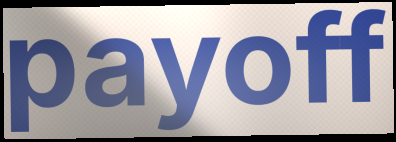
payoff